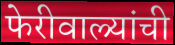
फेरीवाल्यांची